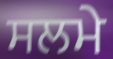
ਸਲਮੇ